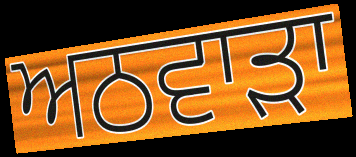
ਅਠਵਾੜਾ